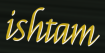
ishtam